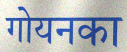
गोयनका